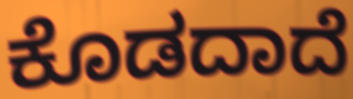
ಕೊಡದಾದೆ